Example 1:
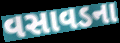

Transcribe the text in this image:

વસાવડના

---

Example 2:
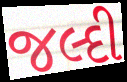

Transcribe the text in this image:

જલ્દી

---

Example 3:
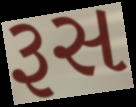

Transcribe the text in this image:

રૂસ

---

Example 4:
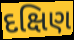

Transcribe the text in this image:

દક્ષિણ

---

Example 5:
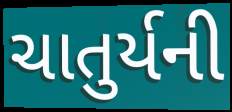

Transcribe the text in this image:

ચાતુર્યની